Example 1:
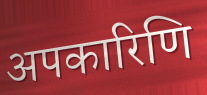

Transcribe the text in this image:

अपकारिणि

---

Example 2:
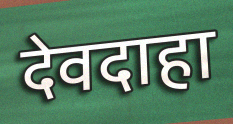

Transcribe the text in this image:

देवदाहा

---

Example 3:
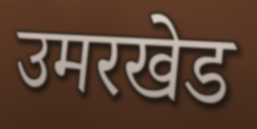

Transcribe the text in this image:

उमरखेड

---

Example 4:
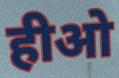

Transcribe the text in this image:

हीओ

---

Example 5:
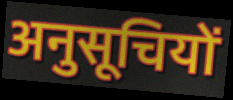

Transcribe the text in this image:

अनुसूचियों